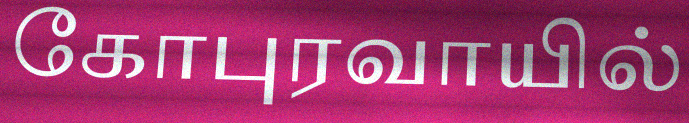
கோபுரவாயில்